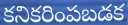
కనికరింపబడక